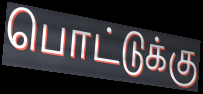
பொட்டுக்கு